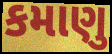
કમાણુ